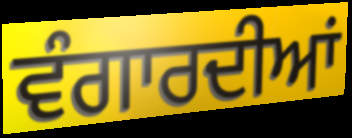
ਵੰਗਾਰਦੀਆਂ